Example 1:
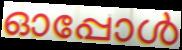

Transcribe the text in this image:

ഓപ്പോൾ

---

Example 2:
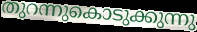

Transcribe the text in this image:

തുറന്നുകൊടുക്കുന്നു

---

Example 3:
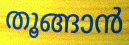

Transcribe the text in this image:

തൂങ്ങാൻ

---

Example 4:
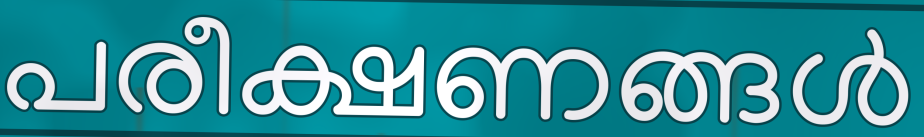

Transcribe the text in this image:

പരീക്ഷണങ്ങൾ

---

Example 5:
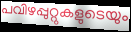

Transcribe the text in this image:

പവിഴപ്പുറ്റുകളുടെയും